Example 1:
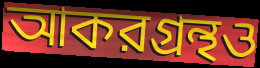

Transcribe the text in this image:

আকরগ্রন্থও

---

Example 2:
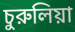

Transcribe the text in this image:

চুরুলিয়া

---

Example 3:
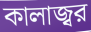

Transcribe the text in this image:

কালাজ্বর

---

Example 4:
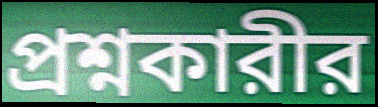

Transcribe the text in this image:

প্রশ্নকারীর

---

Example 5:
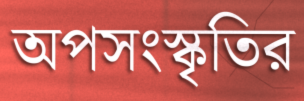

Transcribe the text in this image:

অপসংস্কৃতির